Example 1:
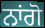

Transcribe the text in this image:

ਨਾਂਗੋ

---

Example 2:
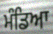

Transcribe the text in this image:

ਮੰਡਿਆ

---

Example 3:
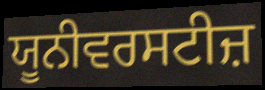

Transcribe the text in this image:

ਯੂਨੀਵਰਸਟੀਜ਼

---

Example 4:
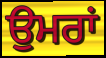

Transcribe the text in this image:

ਉੁਮਰਾਂ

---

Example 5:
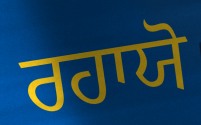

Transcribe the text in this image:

ਰਹਾਯੋ